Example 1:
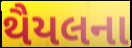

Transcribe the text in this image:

થૈયલના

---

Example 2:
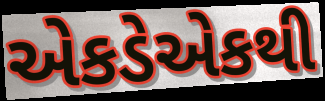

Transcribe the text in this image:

એકડેએકથી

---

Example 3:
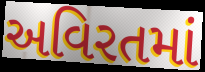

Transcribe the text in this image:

અવિરતમાં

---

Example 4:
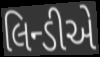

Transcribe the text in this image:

લિન્ડીએ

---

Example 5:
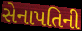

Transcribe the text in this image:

સેનાપતિની